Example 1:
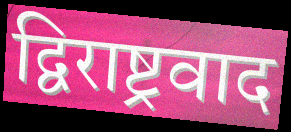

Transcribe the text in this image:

द्विराष्ट्रवाद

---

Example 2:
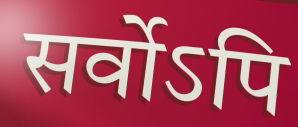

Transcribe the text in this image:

सर्वोऽपि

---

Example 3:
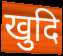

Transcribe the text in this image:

खुदि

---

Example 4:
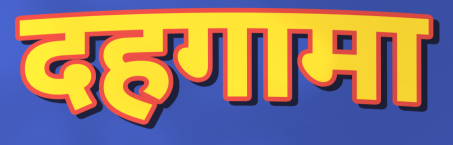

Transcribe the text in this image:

दहगामा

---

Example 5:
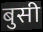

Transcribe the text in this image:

बुसी